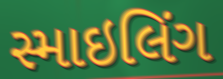
સ્માઇલિંગ